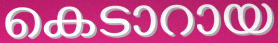
കെടാറായ